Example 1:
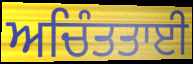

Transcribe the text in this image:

ਅਚਿੰਤਤਾਈ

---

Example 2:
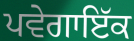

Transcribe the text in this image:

ਪਵੇਗਾਇੱਕ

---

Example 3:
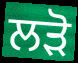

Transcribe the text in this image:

ਲੜੋ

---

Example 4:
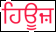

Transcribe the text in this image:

ਹਿਊਜ਼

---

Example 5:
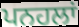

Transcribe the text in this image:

ਪਨਹਲਾਂ